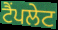
ਟੈਂਪਲੇਟ